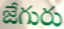
జేగురు